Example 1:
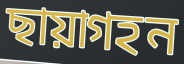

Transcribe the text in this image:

ছায়াগহন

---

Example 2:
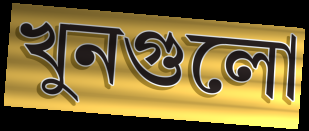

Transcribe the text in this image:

খুনগুলো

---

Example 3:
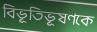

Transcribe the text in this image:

বিভূতিভূষণকে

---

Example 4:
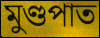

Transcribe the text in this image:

মুণ্ডপাত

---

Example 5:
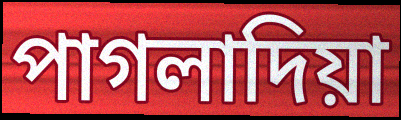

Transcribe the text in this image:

পাগলাদিয়া